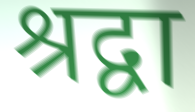
श्रद्वा